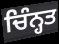
ਚਿੰਨ੍ਹਤ